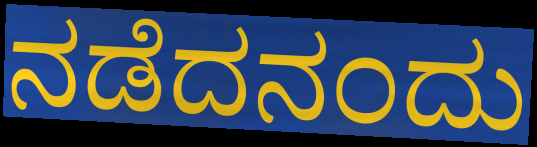
ನಡೆದನಂದು